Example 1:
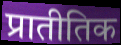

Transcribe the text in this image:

प्रातीतिक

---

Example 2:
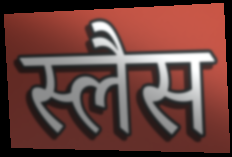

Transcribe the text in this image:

स्लैस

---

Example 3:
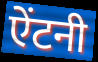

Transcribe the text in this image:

ऐंटनी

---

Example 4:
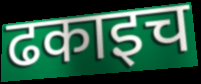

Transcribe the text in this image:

ढकाइच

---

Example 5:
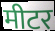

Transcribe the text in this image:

मीटर